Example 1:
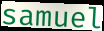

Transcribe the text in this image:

samuel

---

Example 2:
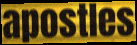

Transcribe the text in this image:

apostles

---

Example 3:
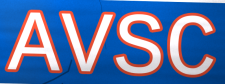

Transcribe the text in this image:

AVSC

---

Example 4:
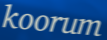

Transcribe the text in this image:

koorum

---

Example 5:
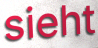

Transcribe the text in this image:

sieht